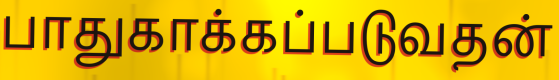
பாதுகாக்கப்படுவதன்